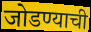
जोडण्याची